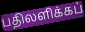
பதிலளிக்கப்